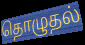
தொழுதல்